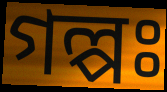
গল্পঃ